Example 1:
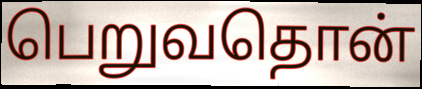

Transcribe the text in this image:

பெறுவதொன்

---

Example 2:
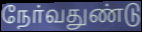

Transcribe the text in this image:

நேர்வதுண்டு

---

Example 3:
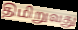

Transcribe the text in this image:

திமிறுவது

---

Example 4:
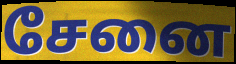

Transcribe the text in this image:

சேனை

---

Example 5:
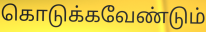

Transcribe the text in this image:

கொடுக்கவேண்டும்